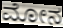
ಮೋನ